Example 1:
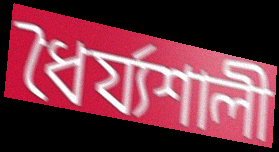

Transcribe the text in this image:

ধৈর্য্যশালী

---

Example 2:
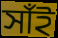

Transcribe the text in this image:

সাঁই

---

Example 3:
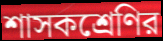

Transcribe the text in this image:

শাসকশ্রেণির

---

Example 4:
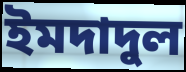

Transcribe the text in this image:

ইমদাদুল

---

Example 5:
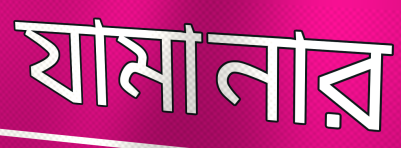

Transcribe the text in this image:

যামানার